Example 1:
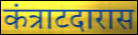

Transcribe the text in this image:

कंत्राटदारास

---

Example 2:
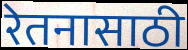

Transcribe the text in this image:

रेतनासाठी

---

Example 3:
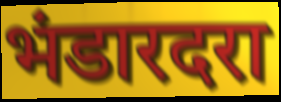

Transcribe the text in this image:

भंडारदरा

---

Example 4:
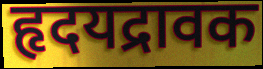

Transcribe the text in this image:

हृदयद्रावक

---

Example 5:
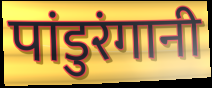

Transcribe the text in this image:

पांडुरंगानी